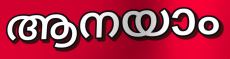
ആനയാം